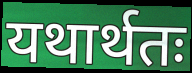
यथार्थतः